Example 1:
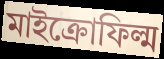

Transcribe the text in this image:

মাইক্রোফিল্ম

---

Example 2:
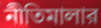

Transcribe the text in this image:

নীতিমালার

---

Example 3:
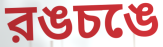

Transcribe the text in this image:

রঙচঙে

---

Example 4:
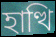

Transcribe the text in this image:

হাত্থি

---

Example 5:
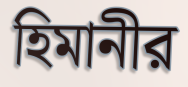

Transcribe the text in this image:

হিমানীর